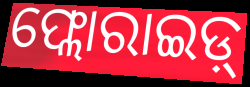
ଫ୍ଲୋରାଇଡ଼୍